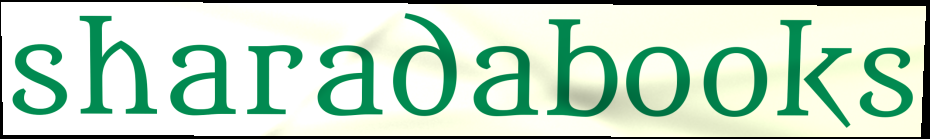
sharadabooks